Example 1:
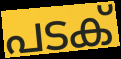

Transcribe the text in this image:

പടക്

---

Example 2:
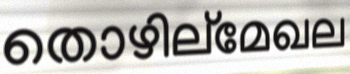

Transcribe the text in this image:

തൊഴില്മേഖല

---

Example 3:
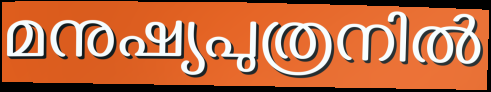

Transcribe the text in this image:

മനുഷ്യപുത്രനിൽ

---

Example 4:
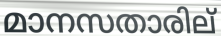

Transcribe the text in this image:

മാനസതാരില്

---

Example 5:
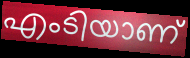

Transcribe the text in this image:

എംടിയാണ്